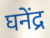
घनेंद्र